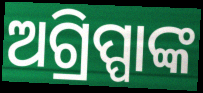
ଅଗ୍ରିପ୍ପାଙ୍କ